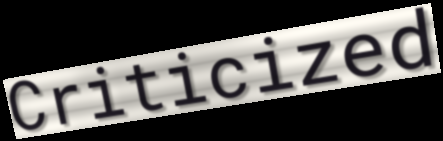
Criticized